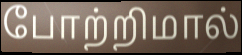
போற்றிமால்